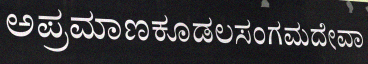
ಅಪ್ರಮಾಣಕೂಡಲಸಂಗಮದೇವಾ